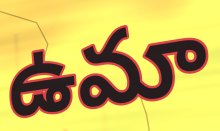
ఉమా